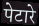
पेटारे